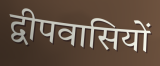
द्वीपवासियों